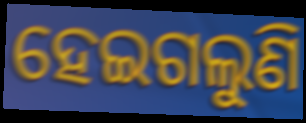
ହେଇଗଲୁଣି